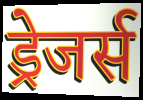
ड्रेजर्स